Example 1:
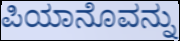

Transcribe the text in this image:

ಪಿಯಾನೊವನ್ನು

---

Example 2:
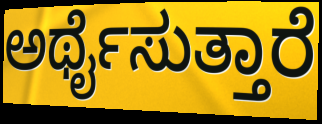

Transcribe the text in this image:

ಅರ್ಥೈಸುತ್ತಾರೆ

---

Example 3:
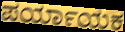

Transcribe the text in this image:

ಪರ್ಯಾಯಕ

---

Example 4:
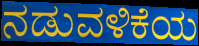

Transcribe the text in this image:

ನಡುವಳಿಕೆಯ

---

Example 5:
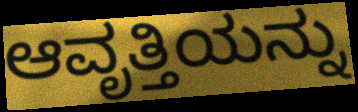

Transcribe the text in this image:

ಆವೃತ್ತಿಯನ್ನು